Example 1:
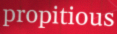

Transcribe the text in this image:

propitious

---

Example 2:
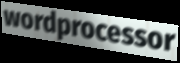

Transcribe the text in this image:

wordprocessor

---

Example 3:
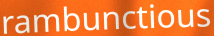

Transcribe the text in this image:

rambunctious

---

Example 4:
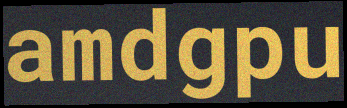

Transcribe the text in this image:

amdgpu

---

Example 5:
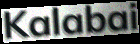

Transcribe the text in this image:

Kalabai